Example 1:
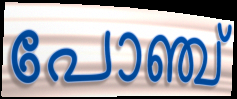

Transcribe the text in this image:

പോഞ്ച്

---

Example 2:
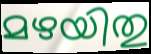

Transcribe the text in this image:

മഴയിതു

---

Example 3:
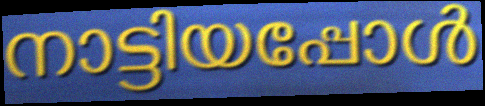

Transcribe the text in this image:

നാട്ടിയപ്പോൾ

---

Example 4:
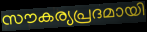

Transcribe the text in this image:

സൗകര്യപ്രദമായി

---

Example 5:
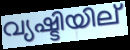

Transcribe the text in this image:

വ്യഷ്ടിയില്